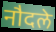
नौदले